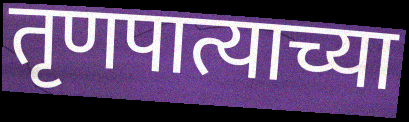
तृणपात्याच्या